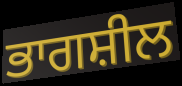
ਭਾਗਸ਼ੀਲ